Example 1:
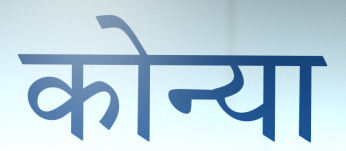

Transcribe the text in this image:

कोन्या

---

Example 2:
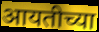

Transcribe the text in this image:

आयतीच्या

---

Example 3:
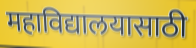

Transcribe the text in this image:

महाविद्यालयासाठी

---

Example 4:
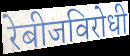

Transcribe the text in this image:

रेबीजविरोधी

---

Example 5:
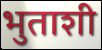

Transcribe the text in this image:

भुताशी